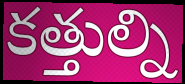
కత్తుల్ని